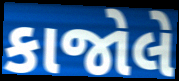
કાજોલે